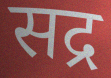
सद्र